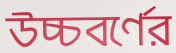
উচ্চবর্ণের